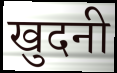
खुदनी